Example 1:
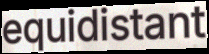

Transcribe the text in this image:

equidistant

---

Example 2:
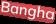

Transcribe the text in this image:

Bangha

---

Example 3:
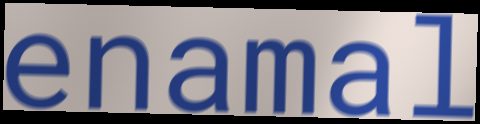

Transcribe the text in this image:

enamal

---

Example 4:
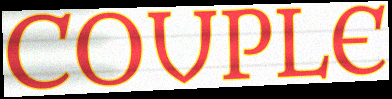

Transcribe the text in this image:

COUPLE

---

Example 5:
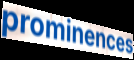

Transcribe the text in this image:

prominences